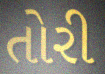
તોરી